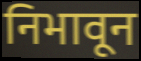
निभावून